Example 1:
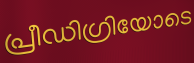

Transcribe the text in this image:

പ്രീഡിഗ്രിയോടെ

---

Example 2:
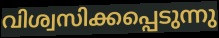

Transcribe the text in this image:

വിശ്വസിക്കപ്പെടുന്നു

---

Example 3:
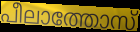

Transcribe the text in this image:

പീലാത്തോസ്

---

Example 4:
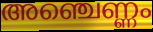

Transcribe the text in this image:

അഞ്ചെണ്ണം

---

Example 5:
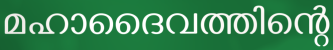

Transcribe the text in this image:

മഹാദൈവത്തിന്റെ